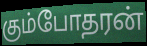
கும்போதரன்